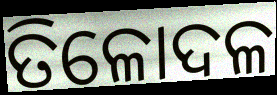
ତିଳୋଦଳ